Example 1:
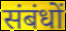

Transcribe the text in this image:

संबंधों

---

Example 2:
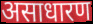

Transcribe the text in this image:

असाधारण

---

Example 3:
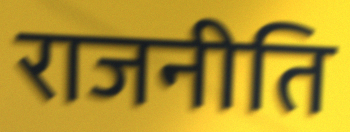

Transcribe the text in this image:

राजनीति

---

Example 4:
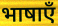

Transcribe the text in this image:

भाषाएँ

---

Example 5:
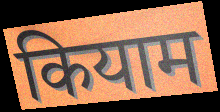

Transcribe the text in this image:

कियाम